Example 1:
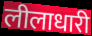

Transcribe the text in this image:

लीलाधारी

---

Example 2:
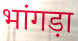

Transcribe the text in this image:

भांगड़ा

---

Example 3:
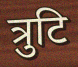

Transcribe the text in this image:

त्रुटि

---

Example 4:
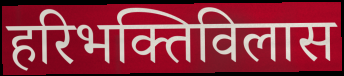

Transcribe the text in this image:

हरिभक्तिविलास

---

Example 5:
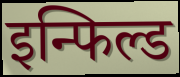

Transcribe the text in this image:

इन्फिल्ड